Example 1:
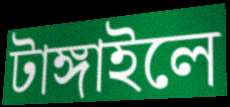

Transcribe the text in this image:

টাঙ্গাইলে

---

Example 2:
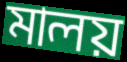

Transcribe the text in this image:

মালয়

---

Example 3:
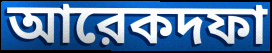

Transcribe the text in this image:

আরেকদফা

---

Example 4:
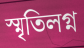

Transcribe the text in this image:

স্মৃতিলগ্ন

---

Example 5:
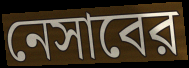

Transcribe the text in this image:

নেসাবের